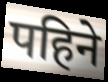
पहिने